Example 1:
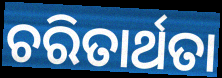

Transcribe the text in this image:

ଚରିତାର୍ଥତା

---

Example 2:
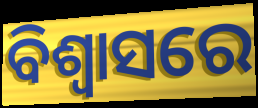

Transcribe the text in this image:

ବିଶ୍ୱାସରେ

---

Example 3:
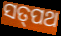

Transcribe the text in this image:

ସତ୍‌ପଥ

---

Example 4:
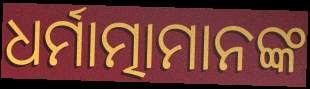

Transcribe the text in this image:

ଧର୍ମାତ୍ମାମାନଙ୍କ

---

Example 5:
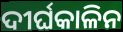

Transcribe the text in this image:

ଦୀର୍ଘକାଳିନ